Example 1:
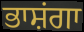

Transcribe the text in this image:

ਭਾਸ਼ਂਗਾ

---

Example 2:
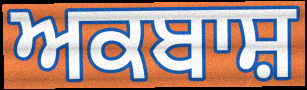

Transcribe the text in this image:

ਅਕਬਾਸ਼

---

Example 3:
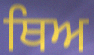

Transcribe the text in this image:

ਥਿਅ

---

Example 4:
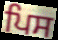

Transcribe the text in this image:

ਪਿਸ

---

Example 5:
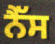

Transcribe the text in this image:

ਨੈੱਸ